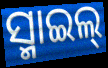
ସ୍ମାଇଲ୍